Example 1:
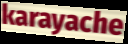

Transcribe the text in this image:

karayache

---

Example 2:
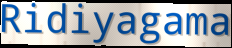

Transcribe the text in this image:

Ridiyagama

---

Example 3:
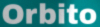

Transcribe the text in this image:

Orbito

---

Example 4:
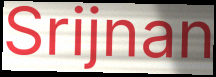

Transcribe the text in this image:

Srijnan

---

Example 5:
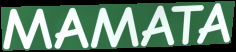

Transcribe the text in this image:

MAMATA